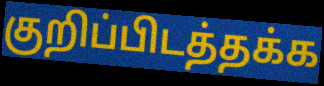
குறிப்பிடத்தக்க